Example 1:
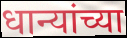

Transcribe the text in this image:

धान्यांच्या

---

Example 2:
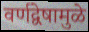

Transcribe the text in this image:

वर्णद्वेषामुळे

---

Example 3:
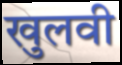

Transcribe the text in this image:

खुलवी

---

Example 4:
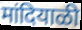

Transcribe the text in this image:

मांदियाळी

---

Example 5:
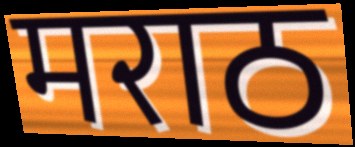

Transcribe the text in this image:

मराठ